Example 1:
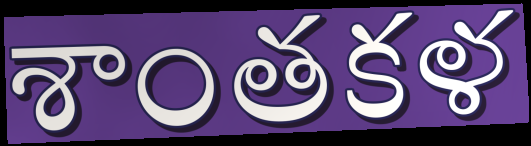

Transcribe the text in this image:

శాంతకళ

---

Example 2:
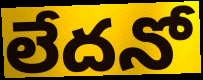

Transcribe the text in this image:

లేదనో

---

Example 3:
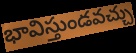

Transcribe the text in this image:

భావిస్తుండవచ్చు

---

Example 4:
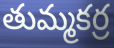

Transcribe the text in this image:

తుమ్మకర్ర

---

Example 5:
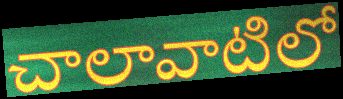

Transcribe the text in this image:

చాలావాటిలో